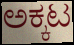
ಅಕ್ಕಟ